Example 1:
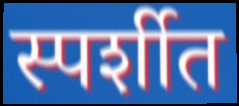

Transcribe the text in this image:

स्पर्शीत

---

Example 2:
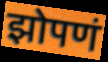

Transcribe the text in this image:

झोपणं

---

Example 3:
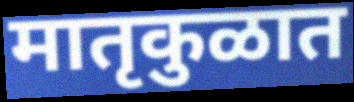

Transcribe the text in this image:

मातृकुळात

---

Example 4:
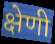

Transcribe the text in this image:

क्षेणी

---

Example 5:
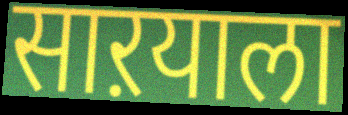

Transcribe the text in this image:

साऱयाला